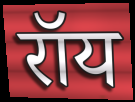
रॉय